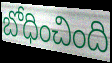
బోధించింది